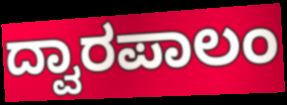
ದ್ವಾರಪಾಲಂ